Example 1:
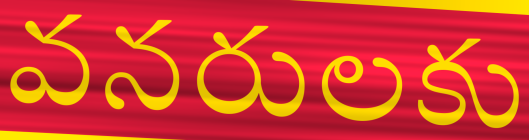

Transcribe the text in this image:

వనరులకు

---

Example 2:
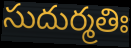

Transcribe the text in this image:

సుదుర్మతిః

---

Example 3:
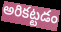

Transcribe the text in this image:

అరికట్టడం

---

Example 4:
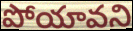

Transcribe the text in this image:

పోయావని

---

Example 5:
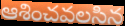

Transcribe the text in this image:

ఆశించవలసిన